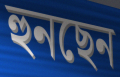
হুনছেন